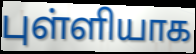
புள்ளியாக